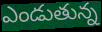
ఎండుతున్న